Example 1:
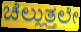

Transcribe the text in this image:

ಚೆಲ್ಲುತ್ತಲೇ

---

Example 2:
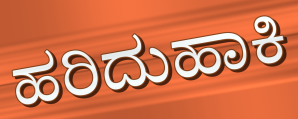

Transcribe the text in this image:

ಹರಿದುಹಾಕಿ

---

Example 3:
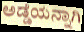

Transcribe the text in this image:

ಅಡ್ಡೆಯನ್ನಾಗಿ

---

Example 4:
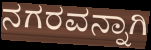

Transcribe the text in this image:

ನಗರವನ್ನಾಗಿ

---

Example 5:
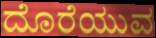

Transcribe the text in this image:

ದೊರೆಯುವ